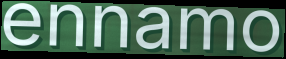
ennamo